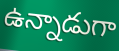
ఉన్నాడుగా